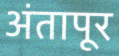
अंतापूर